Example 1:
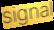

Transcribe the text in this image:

signal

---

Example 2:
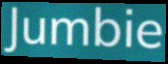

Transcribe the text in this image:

Jumbie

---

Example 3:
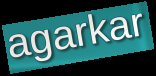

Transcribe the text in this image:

agarkar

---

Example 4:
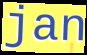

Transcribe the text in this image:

jan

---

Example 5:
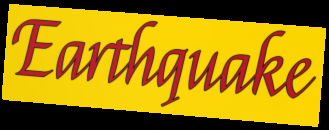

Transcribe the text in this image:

Earthquake